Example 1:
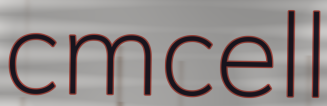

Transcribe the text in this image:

cmcell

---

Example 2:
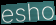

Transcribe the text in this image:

esho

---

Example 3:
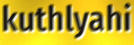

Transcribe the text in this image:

kuthlyahi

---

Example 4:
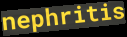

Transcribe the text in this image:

nephritis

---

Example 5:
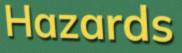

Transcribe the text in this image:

Hazards